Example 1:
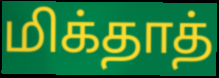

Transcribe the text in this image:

மிக்தாத்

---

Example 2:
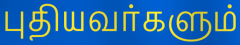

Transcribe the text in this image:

புதியவர்களும்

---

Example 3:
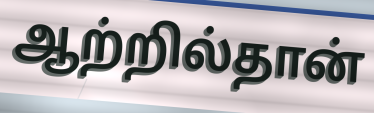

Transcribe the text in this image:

ஆற்றில்தான்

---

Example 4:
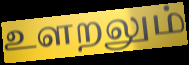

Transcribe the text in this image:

உளறலும்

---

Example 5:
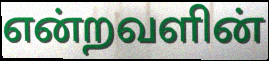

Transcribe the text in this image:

என்றவளின்